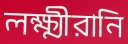
লক্ষ্মীরানি